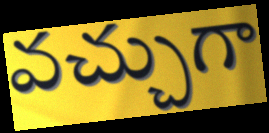
వచ్చుగా